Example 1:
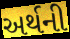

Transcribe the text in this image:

અર્થની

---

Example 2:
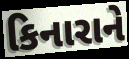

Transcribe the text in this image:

કિનારાને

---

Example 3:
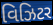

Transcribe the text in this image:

વિઝિટર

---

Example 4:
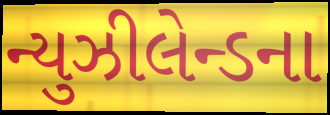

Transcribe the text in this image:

ન્યુઝીલેન્ડના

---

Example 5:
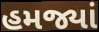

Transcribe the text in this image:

હમજ્યાં